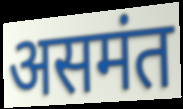
असमंत